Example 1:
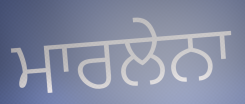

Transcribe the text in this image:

ਮਾਰਲੇਨਾ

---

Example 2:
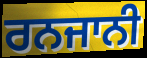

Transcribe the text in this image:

ਰਨਜਾਨੀ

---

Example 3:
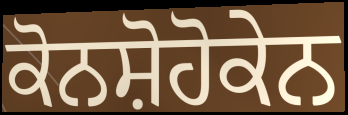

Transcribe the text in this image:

ਕੋਨਸ਼ੋਹੋਕੇਨ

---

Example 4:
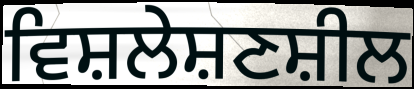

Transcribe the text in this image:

ਵਿਸ਼ਲੇਸ਼ਣਸ਼ੀਲ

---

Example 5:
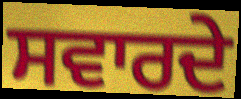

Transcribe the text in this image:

ਸਵਾਰਦੇ